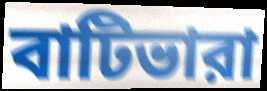
বাটিভারা